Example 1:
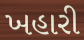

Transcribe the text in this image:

ખહારી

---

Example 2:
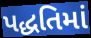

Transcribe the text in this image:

પદ્ધતિમાં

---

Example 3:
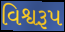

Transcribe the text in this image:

વિશ્વરૂપ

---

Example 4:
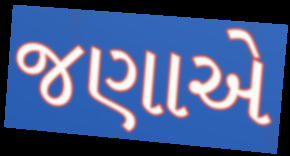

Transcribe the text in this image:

જણાએ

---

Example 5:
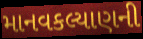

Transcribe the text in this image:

માનવકલ્યાણની